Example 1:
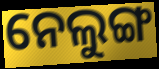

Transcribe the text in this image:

ନେଲୁଙ୍ଗ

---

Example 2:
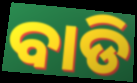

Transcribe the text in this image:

ବାଡି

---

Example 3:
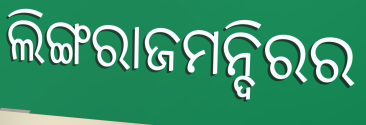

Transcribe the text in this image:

ଲିଙ୍ଗରାଜମନ୍ଦିରର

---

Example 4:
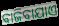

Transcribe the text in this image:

ବାଜିବାଯାଏ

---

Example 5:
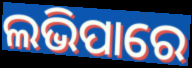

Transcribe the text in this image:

ଲଭିପାରେ